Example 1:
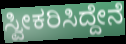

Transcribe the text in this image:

ಸ್ವೀಕರಿಸಿದ್ದೇನೆ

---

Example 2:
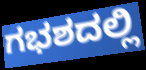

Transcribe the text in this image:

ಗಭಶದಲ್ಲಿ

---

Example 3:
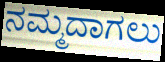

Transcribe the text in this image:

ನಮ್ಮದಾಗಲು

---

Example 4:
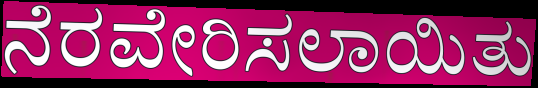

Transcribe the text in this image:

ನೆರವೇರಿಸಲಾಯಿತು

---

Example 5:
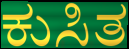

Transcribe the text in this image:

ಕುಸಿತ